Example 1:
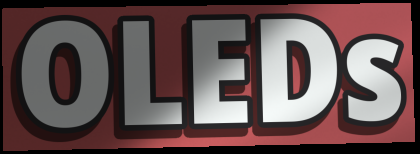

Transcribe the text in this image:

OLEDs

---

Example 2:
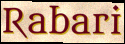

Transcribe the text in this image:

Rabari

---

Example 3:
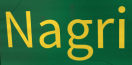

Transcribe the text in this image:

Nagri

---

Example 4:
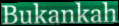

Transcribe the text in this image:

Bukankah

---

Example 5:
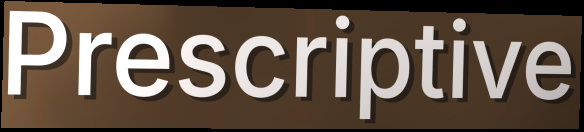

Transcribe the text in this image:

Prescriptive